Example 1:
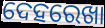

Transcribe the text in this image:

ଦେହରେଖା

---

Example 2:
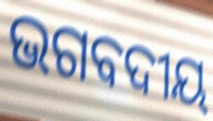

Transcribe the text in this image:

ଭଗବଦୀୟ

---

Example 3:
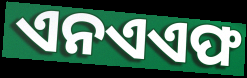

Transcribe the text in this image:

ଏନଏଏଫ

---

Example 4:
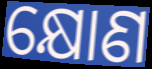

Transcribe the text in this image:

କ୍ଷୋଣ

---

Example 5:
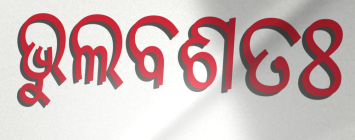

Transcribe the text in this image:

ଭୁଲବଶତଃ